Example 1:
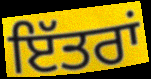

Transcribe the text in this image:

ਇੱਤਰਾਂ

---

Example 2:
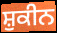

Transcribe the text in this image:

ਸ਼ੁਕੀਨ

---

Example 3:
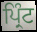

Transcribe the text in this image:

ਪ੍ਰਿੰਟ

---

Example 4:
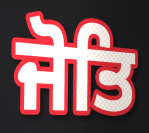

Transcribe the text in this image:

ਜੋਤਿ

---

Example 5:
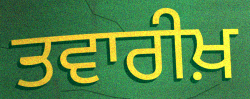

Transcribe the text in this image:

ਤਵਾਰੀਖ਼